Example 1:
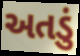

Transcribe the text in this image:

અતડું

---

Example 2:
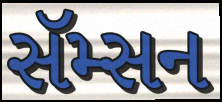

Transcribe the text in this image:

સૅમ્સન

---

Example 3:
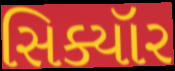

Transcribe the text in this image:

સિક્યૉર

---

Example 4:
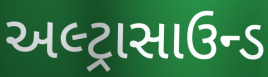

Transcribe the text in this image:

અલ્ટ્રાસાઉન્ડ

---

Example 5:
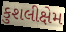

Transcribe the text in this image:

કુશલીક્ષેમ